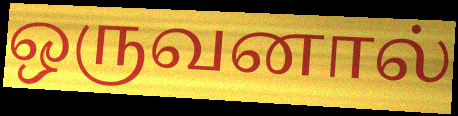
ஒருவனால்